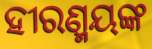
ହୀରଣ୍ମୟଙ୍କ